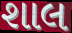
શાલ